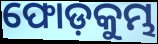
ଫୋଡ଼କୁମ୍ଭ